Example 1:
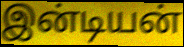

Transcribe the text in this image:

இன்டியன்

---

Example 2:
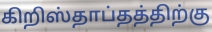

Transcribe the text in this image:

கிறிஸ்தாப்தத்திற்கு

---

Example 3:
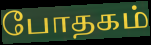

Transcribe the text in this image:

போதகம்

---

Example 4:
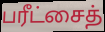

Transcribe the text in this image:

பரீட்சைத்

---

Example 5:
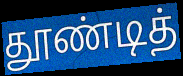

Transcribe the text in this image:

தூண்டித்